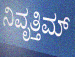
ನಿವೃತ್ತಿಮ್